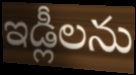
ఇడ్లీలను